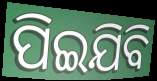
ପିଇଯିବି